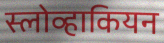
स्लोव्हाकियन